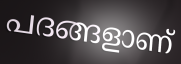
പദങ്ങളാണ്